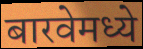
बारवेमध्ये